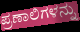
ಪ್ರಣಾಲಿಗಳನ್ನು